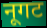
नूगट